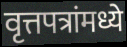
वृत्तपत्रांमध्ये